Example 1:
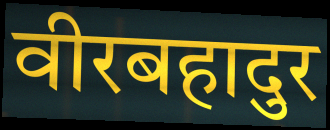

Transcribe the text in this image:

वीरबहादुर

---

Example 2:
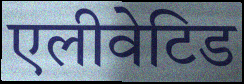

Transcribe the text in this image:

एलीवेटिड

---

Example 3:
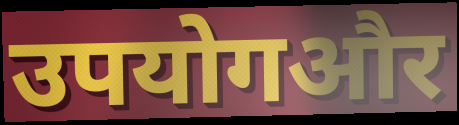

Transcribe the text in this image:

उपयोगऔर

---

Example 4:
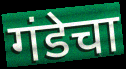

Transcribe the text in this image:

गंडेचा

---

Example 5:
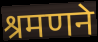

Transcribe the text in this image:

श्रमणने